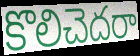
కొలిచెదరా